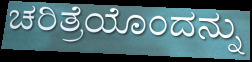
ಚರಿತ್ರೆಯೊಂದನ್ನು